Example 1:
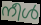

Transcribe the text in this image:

നീൾ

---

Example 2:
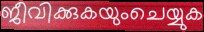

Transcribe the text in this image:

ജീവിക്കുകയുംചെയ്യുക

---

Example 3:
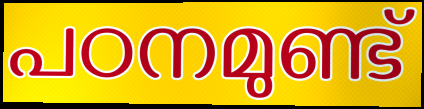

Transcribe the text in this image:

പഠനമുണ്ട്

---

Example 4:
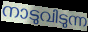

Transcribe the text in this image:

നാടുവിടുന്ന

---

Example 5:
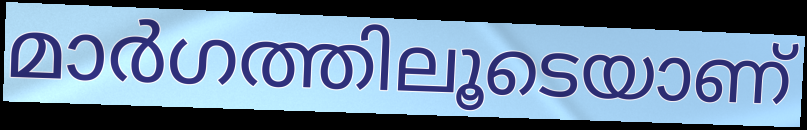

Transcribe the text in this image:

മാർഗത്തിലൂടെയാണ്